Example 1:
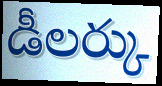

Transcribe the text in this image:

డీలర్కు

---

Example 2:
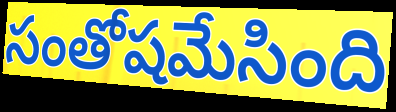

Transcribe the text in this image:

సంతోషమేసింది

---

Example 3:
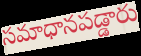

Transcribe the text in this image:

సమాధానపడ్డారు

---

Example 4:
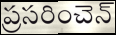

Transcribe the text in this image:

ప్రసరించెన్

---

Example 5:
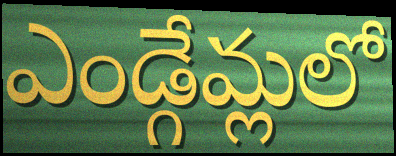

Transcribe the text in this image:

ఎండ్గేమ్లలో